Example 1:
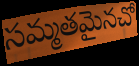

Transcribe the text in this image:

సమ్మతమైనచో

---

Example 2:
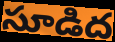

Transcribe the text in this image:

సూడిద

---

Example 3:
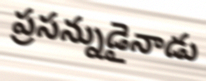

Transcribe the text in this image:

ప్రసన్నుడైనాడు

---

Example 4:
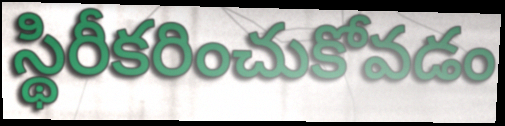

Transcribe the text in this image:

స్థిరీకరించుకోవడం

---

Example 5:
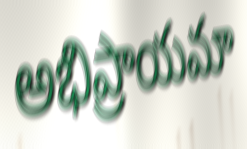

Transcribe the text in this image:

అభిప్రాయమా